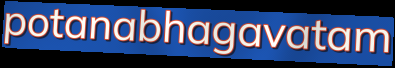
potanabhagavatam